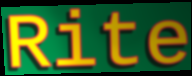
Rite